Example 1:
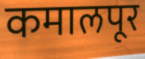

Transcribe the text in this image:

कमालपूर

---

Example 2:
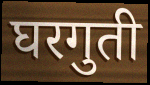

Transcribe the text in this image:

घरगुती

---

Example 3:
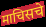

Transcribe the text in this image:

माचिसचे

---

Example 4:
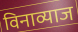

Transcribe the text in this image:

विनाव्याज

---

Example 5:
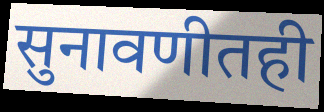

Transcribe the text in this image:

सुनावणीतही